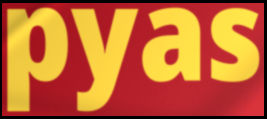
pyas